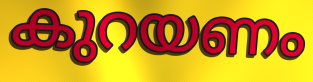
കുറയണം